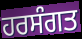
ਹਰਸੰਗਤ